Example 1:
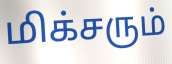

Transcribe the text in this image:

மிக்சரும்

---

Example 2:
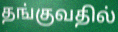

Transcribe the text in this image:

தங்குவதில்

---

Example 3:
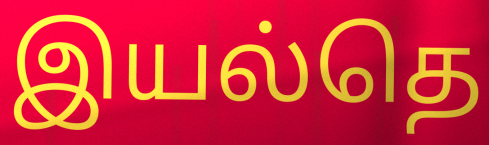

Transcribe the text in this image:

இயல்தெ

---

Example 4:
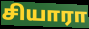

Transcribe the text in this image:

சியாரா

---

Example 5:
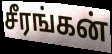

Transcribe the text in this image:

சீரங்கன்